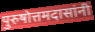
पुरुषोत्तमदासांनी